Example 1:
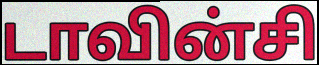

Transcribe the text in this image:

டாவின்சி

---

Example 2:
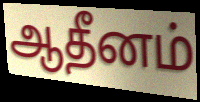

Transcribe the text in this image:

ஆதீனம்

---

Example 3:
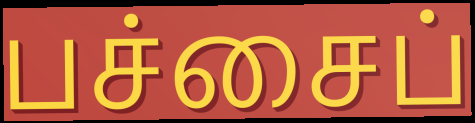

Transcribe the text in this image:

பச்சைப்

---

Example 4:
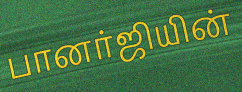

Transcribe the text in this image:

பானர்ஜியின்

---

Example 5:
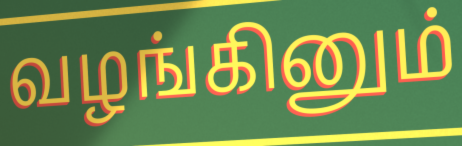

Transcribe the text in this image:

வழங்கினும்